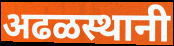
अढळस्थानी